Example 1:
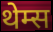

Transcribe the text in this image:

थेम्स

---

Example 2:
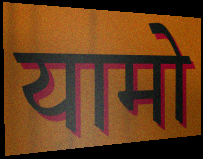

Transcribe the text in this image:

यामो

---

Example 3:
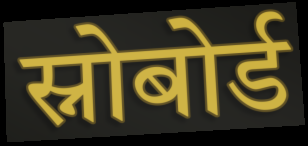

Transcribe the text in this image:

स्नोबोर्ड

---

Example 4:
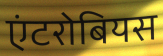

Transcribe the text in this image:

एंटरोबियस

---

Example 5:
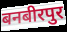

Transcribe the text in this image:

बनबीरपुर